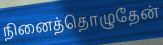
நினைத்தொழுதேன்